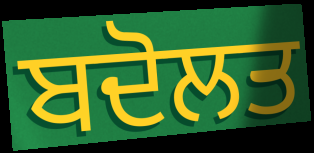
ਬਦੋਲਤ